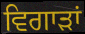
ਵਿਗਾੜਾਂ